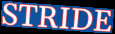
STRIDE